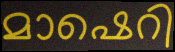
മാഷെറി